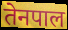
तेनपाल